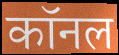
कॉनल